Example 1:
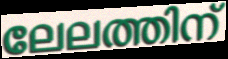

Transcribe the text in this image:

ലേലത്തിന്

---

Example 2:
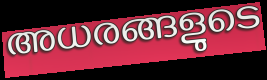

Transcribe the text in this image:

അധരങ്ങളുടെ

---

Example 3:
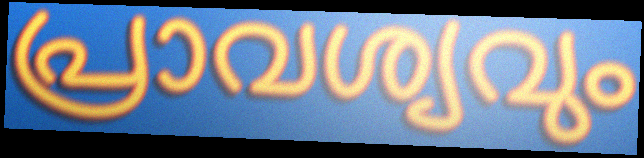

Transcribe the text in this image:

പ്രാവശ്യവും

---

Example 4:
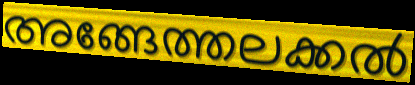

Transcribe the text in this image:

അങ്ങേത്തലക്കൽ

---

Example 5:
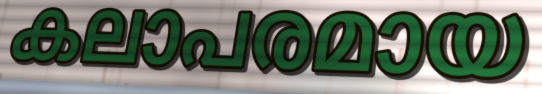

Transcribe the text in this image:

കലാപരമായ